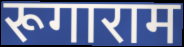
रूगाराम